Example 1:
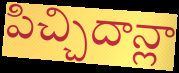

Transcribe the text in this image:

పిచ్చిదాన్లా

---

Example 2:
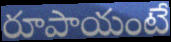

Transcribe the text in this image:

రూపాయంటే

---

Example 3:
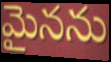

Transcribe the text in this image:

మైనను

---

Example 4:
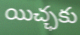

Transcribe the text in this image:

యిచ్ఛకు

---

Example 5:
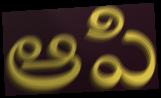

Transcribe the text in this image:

ఆపి